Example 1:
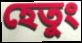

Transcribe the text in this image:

হেতুং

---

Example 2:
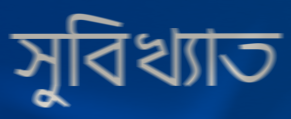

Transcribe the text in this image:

সুবিখ্যাত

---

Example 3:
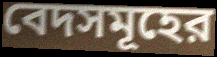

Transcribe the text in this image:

বেদসমূহের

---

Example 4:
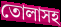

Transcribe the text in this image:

তোলাসহ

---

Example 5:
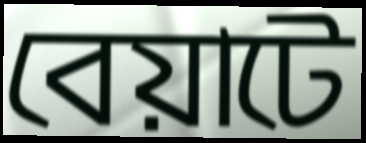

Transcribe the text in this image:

বেয়াটে